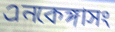
এনকেঙ্গাসং